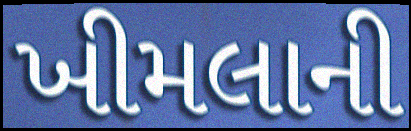
ખીમલાની